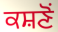
ਕਸ਼ਣੋਂ